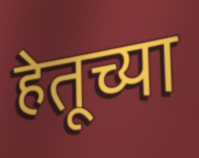
हेतूच्या